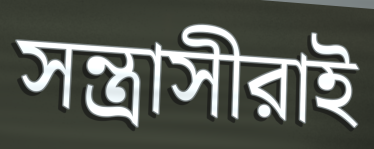
সন্ত্রাসীরাই